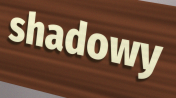
shadowy